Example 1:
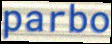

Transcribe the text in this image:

parbo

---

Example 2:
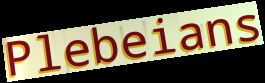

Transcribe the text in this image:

Plebeians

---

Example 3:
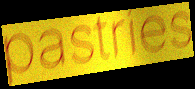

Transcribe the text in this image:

pastries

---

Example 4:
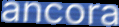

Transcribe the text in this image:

ancora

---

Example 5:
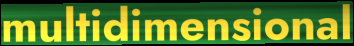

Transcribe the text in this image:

multidimensional